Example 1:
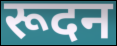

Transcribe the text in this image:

रूदन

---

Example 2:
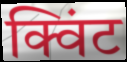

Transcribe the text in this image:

क्विंट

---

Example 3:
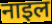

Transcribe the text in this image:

नाइल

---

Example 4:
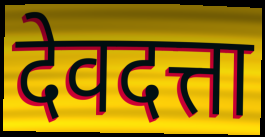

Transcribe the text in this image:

देवदत्ता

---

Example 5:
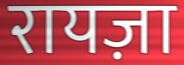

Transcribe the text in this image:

रायज़ा